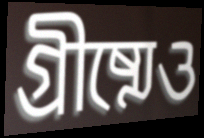
গ্রীষ্মেও